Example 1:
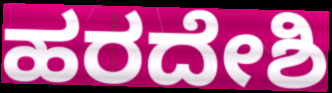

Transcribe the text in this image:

ಹರದೇಶಿ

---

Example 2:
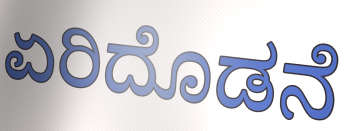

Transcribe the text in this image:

ಏರಿದೊಡನೆ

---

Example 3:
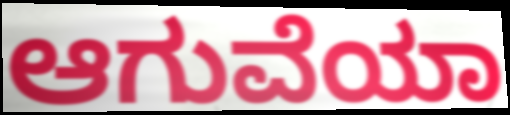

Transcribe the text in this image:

ಆಗುವೆಯಾ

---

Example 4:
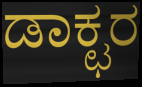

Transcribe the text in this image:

ಡಾಕ್ಟರ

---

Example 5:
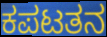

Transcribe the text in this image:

ಕಪಟತನ